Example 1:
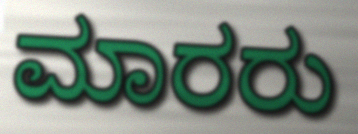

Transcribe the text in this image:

ಮಾರರು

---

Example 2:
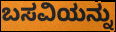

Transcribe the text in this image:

ಬಸವಿಯನ್ನು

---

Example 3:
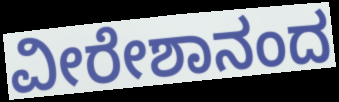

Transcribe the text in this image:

ವೀರೇಶಾನಂದ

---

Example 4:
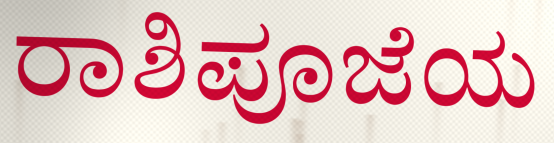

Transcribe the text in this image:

ರಾಶಿಪೂಜೆಯ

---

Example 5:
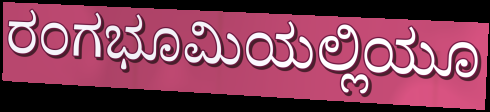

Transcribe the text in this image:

ರಂಗಭೂಮಿಯಲ್ಲಿಯೂ